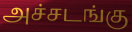
அச்சடங்கு